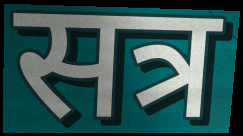
सत्र